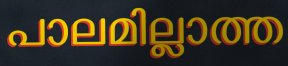
പാലമില്ലാത്ത